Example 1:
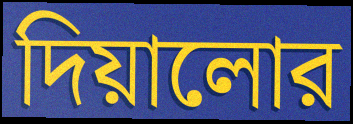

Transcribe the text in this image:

দিয়ালোর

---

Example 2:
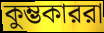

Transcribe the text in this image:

কুম্ভকাররা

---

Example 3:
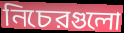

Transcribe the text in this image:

নিচেরগুলো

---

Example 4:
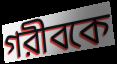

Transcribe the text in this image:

গরীবকে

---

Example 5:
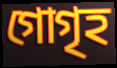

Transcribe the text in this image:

গোগৃহ